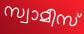
സ്വാമീസ്